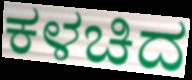
ಕಳಚಿದ